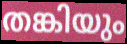
തങ്കിയും